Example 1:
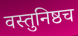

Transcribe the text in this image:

वस्तुनिष्ठच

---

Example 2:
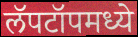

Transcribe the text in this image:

लॅपटॉपमध्ये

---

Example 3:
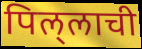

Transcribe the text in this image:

पिल्लाची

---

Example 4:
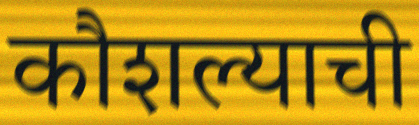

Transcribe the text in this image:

कौशल्याची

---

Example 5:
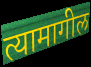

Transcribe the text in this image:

त्यामागील